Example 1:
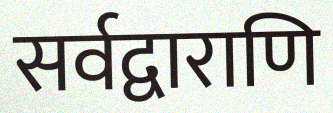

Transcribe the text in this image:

सर्वद्वाराणि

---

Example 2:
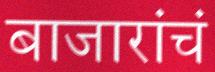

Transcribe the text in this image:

बाजारांचं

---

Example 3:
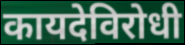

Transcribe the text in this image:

कायदेविरोधी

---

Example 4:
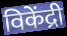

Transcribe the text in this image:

विकेंद्री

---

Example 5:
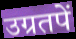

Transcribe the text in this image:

उग्रतपें